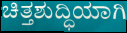
ಚಿತ್ತಶುದ್ಧಿಯಾಗಿ